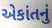
એકાંતનું